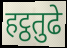
हट्ठतुढे